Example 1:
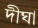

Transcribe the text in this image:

দীঘা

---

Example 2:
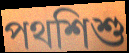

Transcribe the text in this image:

পথশিশু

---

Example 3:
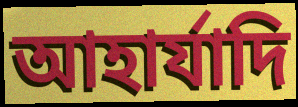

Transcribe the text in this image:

আহার্যাদি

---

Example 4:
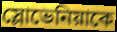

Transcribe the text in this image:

স্লোভেনিয়াকে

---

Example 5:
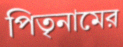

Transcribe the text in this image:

পিতৃনামের